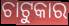
ଚାଟୁକାର